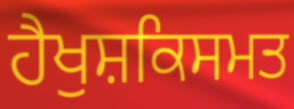
ਹੈਖੁਸ਼ਕਿਸਮਤ